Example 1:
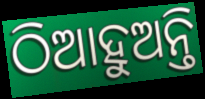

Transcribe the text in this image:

ଠିଆହୁଅନ୍ତି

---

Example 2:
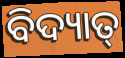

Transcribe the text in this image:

ବିଦ୍ୟାତ୍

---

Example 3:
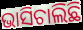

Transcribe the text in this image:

ଭାସିଚାଲିଛି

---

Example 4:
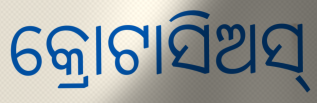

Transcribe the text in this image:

କ୍ରୋଟାସିଅସ୍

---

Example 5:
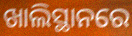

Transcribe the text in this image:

ଖାଲିସ୍ଥାନରେ